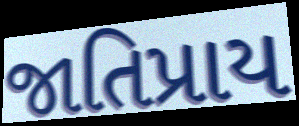
જાતિપ્રાય